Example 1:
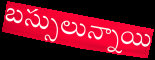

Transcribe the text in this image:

బస్సులున్నాయి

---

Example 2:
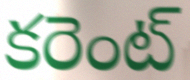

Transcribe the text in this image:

కరెంట్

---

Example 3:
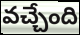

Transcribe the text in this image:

వచ్చేంది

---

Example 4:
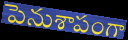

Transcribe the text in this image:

పెనుశాపంగా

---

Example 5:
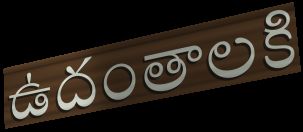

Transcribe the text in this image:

ఉదంతాలకి